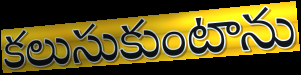
కలుసుకుంటాను